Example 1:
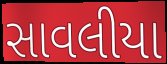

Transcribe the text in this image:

સાવલીયા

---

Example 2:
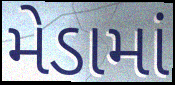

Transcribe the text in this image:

મેડામાં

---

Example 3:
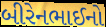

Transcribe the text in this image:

બીરેનભાઈનો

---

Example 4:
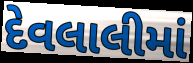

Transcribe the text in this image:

દેવલાલીમાં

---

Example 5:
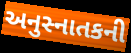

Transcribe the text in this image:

અનુસ્નાતકની